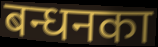
बन्धनका